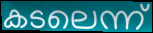
കടലെന്ന്